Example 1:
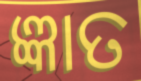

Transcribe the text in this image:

ଜ୍ଞାତ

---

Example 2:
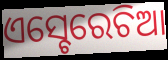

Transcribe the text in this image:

ଏସ୍ଚେରେଚିଆ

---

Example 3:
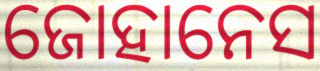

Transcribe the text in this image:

ଜୋହାନେସ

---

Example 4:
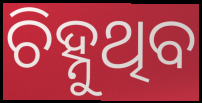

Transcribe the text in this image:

ଚିହ୍ନୁଥିବ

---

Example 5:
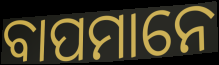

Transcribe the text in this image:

ବାପମାନେ